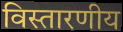
विस्तारणीय